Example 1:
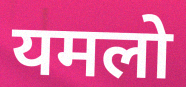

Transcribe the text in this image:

यमलो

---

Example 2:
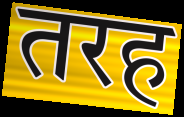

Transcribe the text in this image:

तरह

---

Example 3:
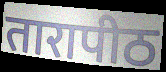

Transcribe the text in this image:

तारापीठ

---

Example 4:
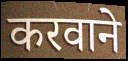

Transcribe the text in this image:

करवाने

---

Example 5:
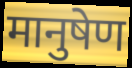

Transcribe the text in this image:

मानुषेण